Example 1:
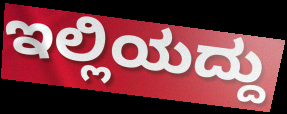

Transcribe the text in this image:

ಇಲ್ಲಿಯದ್ದು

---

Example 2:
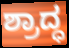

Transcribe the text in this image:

ಶ್ರಾದ್ಧ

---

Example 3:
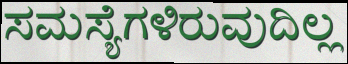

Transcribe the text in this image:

ಸಮಸ್ಯೆಗಳಿರುವುದಿಲ್ಲ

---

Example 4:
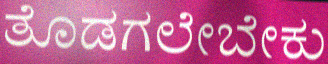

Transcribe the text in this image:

ತೊಡಗಲೇಬೇಕು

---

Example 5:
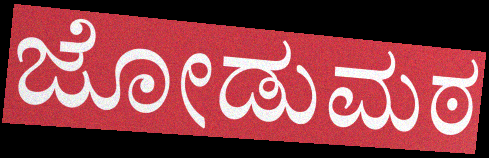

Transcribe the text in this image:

ಜೋಡುಮಠ